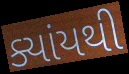
ક્યાંયથી